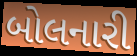
બોલનારી